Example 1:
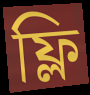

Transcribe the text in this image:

ফ্লি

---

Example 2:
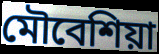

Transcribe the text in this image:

মৌবেশিয়া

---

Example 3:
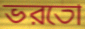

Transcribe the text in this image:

ভরতো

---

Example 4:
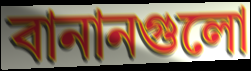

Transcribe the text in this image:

বানানগুলো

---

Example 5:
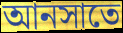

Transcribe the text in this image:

আনসাতে